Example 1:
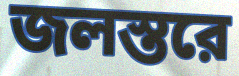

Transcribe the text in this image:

জলস্তরে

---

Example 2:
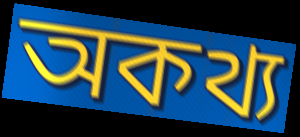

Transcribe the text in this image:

অকথ্য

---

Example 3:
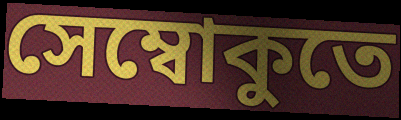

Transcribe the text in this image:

সেম্বোকুতে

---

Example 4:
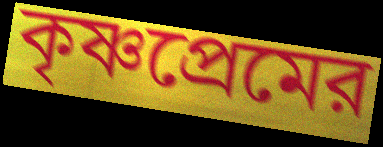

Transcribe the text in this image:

কৃষ্ণপ্রেমের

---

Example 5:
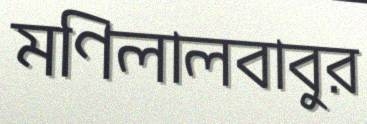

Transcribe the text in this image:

মণিলালবাবুর